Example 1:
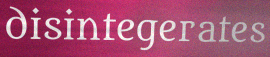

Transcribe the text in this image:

disintegerates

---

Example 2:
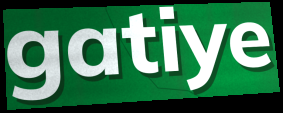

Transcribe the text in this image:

gatiye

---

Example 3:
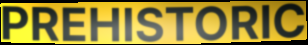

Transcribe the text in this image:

PREHISTORIC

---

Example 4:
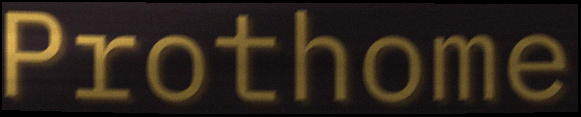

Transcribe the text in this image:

Prothome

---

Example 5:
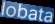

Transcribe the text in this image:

lobata